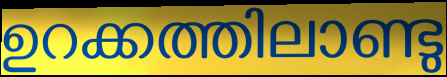
ഉറക്കത്തിലാണ്ടു